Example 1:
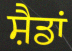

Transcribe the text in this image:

ਸ਼ੈਡਾਂ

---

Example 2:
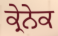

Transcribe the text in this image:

ਕ੍ਰੇਨੇਕ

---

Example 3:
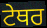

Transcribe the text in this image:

ਟੇਥਰ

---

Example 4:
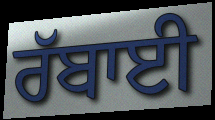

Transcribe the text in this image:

ਰੱਬਾਈ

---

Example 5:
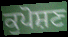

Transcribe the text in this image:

ਕੁਪੋਸ਼ਣ